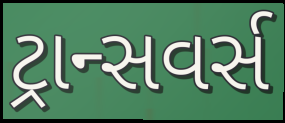
ટ્રાન્સવર્સ